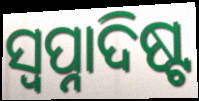
ସ୍ୱପ୍ନାଦିଷ୍ଟ